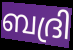
ബദ്രി